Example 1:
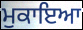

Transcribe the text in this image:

ਮੁਕਾਇਆ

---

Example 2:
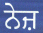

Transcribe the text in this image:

ਨੇਜ਼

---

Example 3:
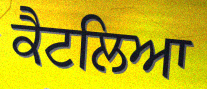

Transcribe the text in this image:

ਕੈਟਲਿਆ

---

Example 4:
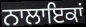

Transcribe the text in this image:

ਨਾਲਾਇਕਾਂ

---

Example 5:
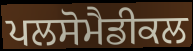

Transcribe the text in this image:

ਪਲਸੋਮੈਡੀਕਲ